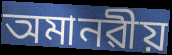
অমানৱীয়